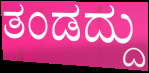
ತಂಡದ್ದು